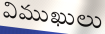
విముఖులు